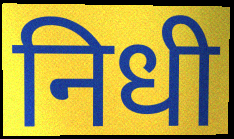
निधी